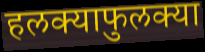
हलक्याफुलक्या